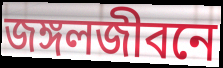
জঙ্গলজীবনে